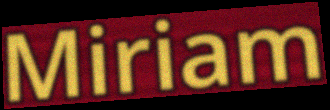
Miriam